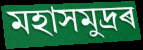
মহাসমুদ্ৰৰ